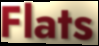
Flats